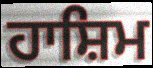
ਹਾਸ਼ਿਮ